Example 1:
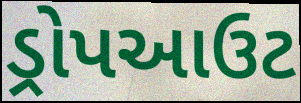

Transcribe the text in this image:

ડ્રોપઆઉટ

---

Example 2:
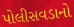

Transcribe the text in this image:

પોલીસવડાનો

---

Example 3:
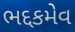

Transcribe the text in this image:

ભદ્દકમેવ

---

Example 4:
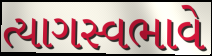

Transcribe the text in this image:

ત્યાગસ્વભાવે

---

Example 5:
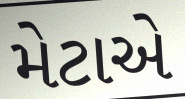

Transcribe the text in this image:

મેટાએ